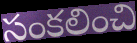
సంకలించి